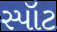
સ્પૉટ